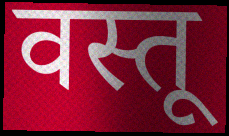
वस्तू